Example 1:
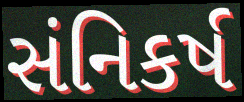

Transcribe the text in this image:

સંનિકર્ષ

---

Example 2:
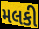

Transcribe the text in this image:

મલકી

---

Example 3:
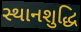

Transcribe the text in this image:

સ્થાનશુદ્ધિ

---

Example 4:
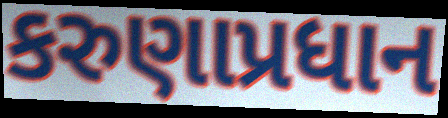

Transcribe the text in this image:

કરુણાપ્રધાન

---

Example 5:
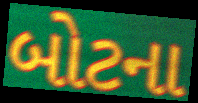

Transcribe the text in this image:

બોટના